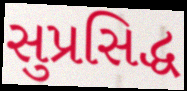
સુપ્રસિદ્ધ